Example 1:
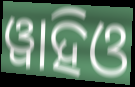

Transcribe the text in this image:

ୱାହିଓ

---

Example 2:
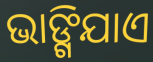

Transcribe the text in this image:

ଭାଙ୍ଗିଯାଏ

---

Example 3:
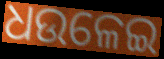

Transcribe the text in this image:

ଧଉଳେଇ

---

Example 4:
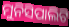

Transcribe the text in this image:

ମୁନିସିପାଲିଟି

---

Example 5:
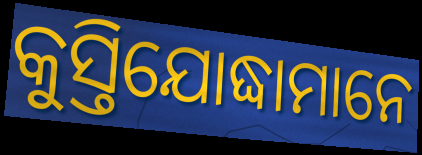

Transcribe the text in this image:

କୁସ୍ତିଯୋଦ୍ଧାମାନେ